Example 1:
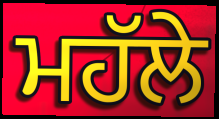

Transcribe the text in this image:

ਮਹੱਲੇ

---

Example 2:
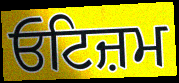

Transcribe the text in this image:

ਓਟਿਜ਼ਮ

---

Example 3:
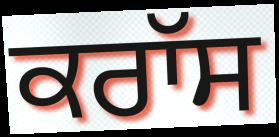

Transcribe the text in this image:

ਕਰਾੱਸ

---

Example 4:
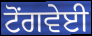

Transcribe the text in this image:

ਟੋਂਗਵੇਈ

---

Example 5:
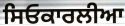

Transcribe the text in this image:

ਸਿਓਕਾਰਲੀਆ